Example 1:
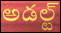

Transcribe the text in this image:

అడల్ట్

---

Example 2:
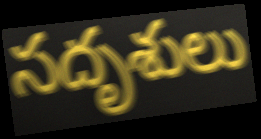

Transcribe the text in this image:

సదృశులు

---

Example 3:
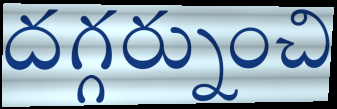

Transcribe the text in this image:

దగ్గర్నుంచి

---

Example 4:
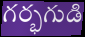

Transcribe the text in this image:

గర్భగుడి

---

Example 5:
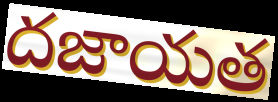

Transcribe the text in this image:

దజాయత